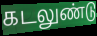
கடலுண்டு